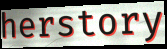
herstory